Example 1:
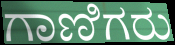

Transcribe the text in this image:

ಗಾಣಿಗರು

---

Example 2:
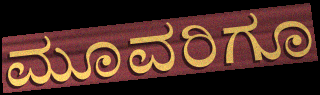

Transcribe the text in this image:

ಮೂವರಿಗೂ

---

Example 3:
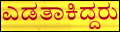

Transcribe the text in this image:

ಎಡತಾಕಿದ್ದರು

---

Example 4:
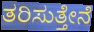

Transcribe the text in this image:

ತರಿಸುತ್ತೇನೆ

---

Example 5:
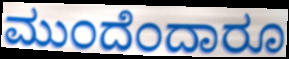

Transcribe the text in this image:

ಮುಂದೆಂದಾರೂ